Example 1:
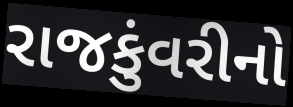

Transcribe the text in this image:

રાજકુંવરીનો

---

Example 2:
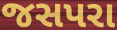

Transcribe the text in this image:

જસપરા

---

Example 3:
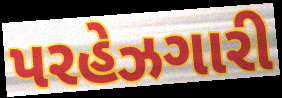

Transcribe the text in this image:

પરહેઝગારી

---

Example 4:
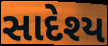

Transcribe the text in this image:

સાદેશ્ય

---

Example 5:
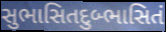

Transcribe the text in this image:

સુભાસિતદુબ્ભાસિતં